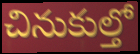
చినుకుల్తో